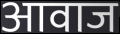
आवाज